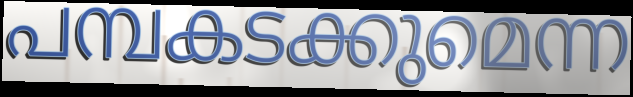
പമ്പകടക്കുമെന്ന